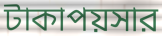
টাকাপয়সার